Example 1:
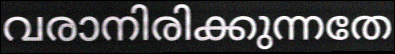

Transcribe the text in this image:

വരാനിരിക്കുന്നതേ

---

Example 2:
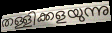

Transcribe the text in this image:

തള്ളിക്കളയുന്നു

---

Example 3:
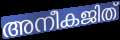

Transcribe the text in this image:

അനീകജിത്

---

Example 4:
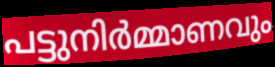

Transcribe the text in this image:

പട്ടുനിർമ്മാണവും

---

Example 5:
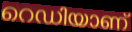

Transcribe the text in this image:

റെഡിയാണ്